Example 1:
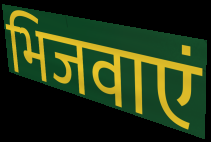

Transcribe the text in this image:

भिजवाएं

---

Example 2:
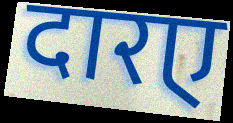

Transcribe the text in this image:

दारए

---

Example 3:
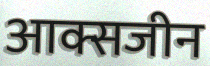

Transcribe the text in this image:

आक्सजीन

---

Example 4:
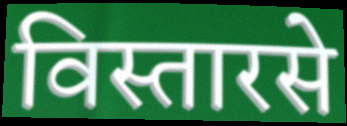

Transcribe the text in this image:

विस्तारसे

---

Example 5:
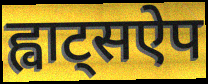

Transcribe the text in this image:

ह्वाट्सऐप